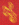
ಜೈ